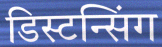
डिस्टन्सिंग